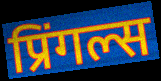
प्रिंगल्स